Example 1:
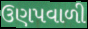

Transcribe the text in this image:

ઉણપવાળી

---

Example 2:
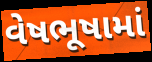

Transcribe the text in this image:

વેષભૂષામાં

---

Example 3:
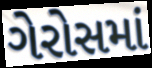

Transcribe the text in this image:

ગેરોસમાં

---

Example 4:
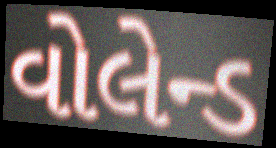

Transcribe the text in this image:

વોલેન્ડ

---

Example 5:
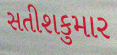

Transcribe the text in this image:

સતીશકુમાર